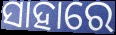
ସାହାରେ